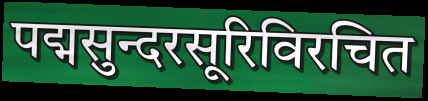
पद्मसुन्दरसूरिविरचित